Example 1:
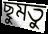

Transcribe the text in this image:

ছুমতু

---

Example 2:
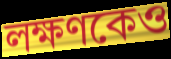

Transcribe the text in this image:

লক্ষণকেও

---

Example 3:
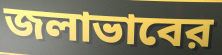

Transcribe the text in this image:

জলাভাবের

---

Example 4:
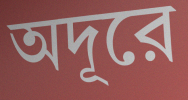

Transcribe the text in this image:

অদূরে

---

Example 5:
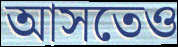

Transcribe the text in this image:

আসতেও